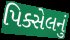
પિક્સેલનું